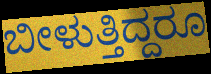
ಬೀಳುತ್ತಿದ್ದರೂ